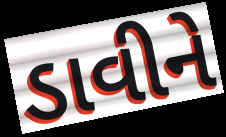
ડાવીને